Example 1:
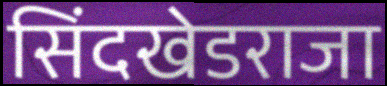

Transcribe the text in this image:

सिंदखेडराजा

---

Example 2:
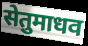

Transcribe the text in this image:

सेतुमाधव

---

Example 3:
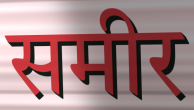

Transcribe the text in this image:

समीर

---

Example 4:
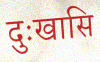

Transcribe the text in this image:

दुःखासि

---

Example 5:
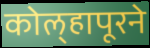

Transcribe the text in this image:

कोल्हापूरने